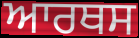
ਆਰਥਸ